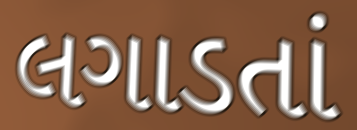
લગાડતાં